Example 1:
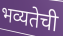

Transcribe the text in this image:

भव्यतेची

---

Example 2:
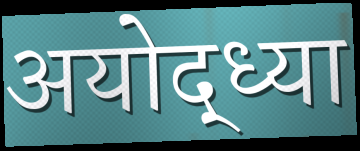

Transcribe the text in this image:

अयोद्ध्या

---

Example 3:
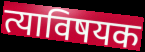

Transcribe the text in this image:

त्याविषयक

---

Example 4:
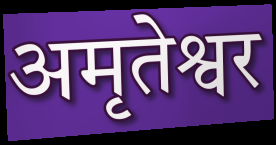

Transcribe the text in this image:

अमृतेश्वर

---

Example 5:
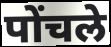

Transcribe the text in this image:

पोंचले